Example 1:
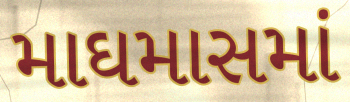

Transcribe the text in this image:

માઘમાસમાં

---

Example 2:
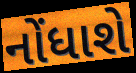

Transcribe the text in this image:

નોંધાશે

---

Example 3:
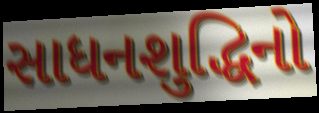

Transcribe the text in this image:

સાધનશુદ્ધિનો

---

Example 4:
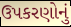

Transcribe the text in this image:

ઉપકરણોનું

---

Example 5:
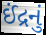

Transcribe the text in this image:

ઈંદ્રનું